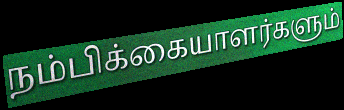
நம்பிக்கையாளர்களும்